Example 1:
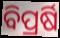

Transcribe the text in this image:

ବିପ୍ରର୍ଷି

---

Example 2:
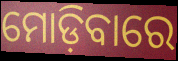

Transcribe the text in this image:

ମୋଡ଼ିବାରେ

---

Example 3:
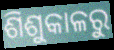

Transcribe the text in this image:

ଶିଶୁକାଳରୁ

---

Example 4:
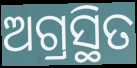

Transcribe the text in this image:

ଅଗ୍ରସ୍ଥିତ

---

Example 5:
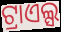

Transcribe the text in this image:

ଟ୍ରାଏଲ୍ସ